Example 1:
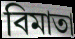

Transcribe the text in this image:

বিমাতা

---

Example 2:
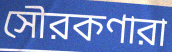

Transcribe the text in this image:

সৌরকণারা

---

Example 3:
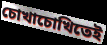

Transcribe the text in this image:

চোখাচোখিতেই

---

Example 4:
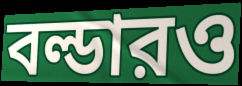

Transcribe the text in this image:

বল্ডারও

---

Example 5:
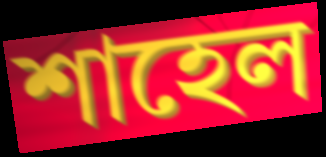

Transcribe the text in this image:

শাহেল